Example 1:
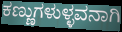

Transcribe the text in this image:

ಕಣ್ಣುಗಳುಳ್ಳವನಾಗಿ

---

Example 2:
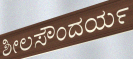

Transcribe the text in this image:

ಶೀಲಸೌಂದರ್ಯ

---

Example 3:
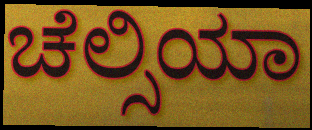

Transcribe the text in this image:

ಚೆಲ್ಸಿಯಾ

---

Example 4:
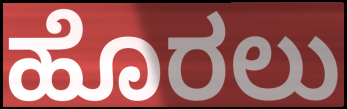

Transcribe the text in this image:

ಹೊರಲು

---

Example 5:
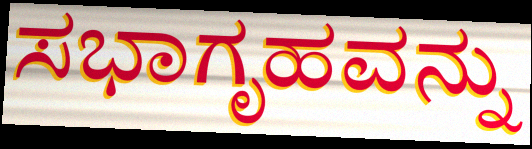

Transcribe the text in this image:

ಸಭಾಗೃಹವನ್ನು